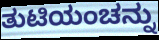
ತುಟಿಯಂಚನ್ನು